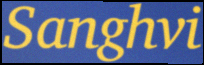
Sanghvi